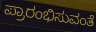
ಪ್ರಾರಂಭಿಸುವಂತೆ